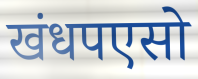
खंधपएसो